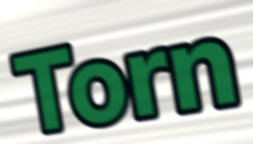
Torn